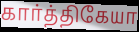
கார்த்திகேயா